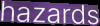
hazards